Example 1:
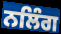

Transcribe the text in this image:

ਨਲਿੰਗ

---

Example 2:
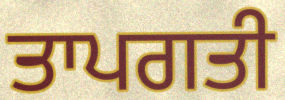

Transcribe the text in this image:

ਤਾਪਗਤੀ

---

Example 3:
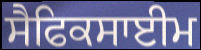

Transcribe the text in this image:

ਸੈਫਿਕਸਾਈਮ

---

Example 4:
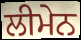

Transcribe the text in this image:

ਲੀਮੇਨ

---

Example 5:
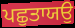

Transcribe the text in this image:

ਪਛੁਤਾਯਉ